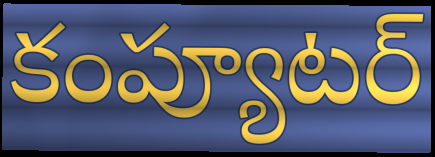
కంప్యూటర్